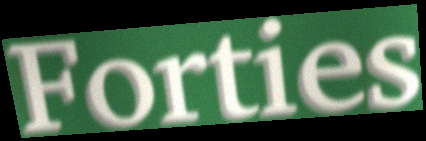
Forties